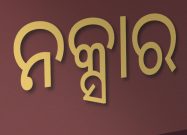
ନକ୍ସାର